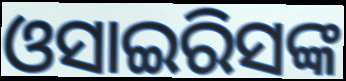
ଓସାଇରିସଙ୍କ